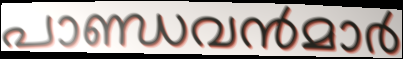
പാണ്ഡവൻമാർ